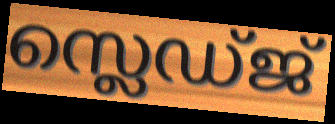
സ്ലെഡ്ജ്